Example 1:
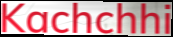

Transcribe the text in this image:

Kachchhi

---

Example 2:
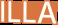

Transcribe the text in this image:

ILLA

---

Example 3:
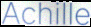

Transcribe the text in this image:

Achille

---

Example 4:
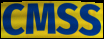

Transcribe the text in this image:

CMSS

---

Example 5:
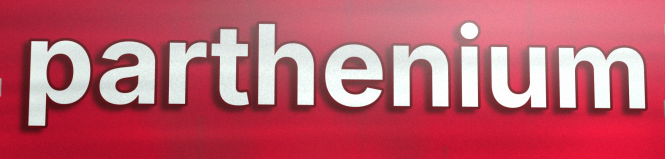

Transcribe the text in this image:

parthenium